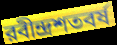
রবীন্দ্রশতবর্ষ